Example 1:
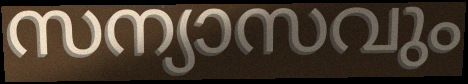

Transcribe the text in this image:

സന്യാസവും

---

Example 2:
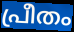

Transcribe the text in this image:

പ്രീതം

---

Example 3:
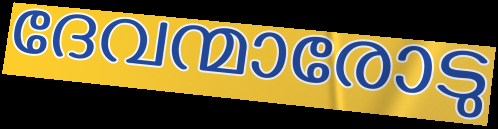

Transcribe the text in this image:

ദേവന്മാരോടു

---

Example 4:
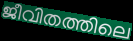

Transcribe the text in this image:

ജീവിതത്തിലെ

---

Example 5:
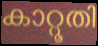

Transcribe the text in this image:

കാറ്റൂതി